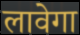
लावेगा